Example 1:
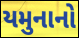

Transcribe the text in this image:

યમુનાનો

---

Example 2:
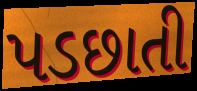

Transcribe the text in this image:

પડછાતી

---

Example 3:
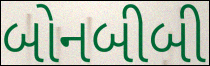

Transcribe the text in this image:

બોનબીબી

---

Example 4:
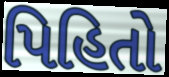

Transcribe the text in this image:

પિહિતો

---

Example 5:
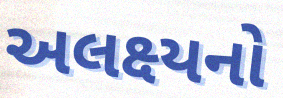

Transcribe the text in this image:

અલક્ષ્યનો